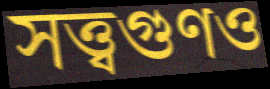
সত্ত্বগুণও